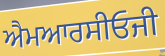
ਐਮਆਰਸੀਓਜੀ